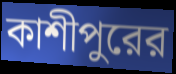
কাশীপুরের